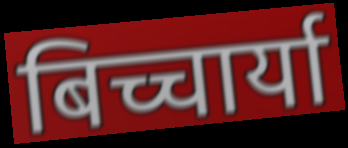
बिच्चार्या